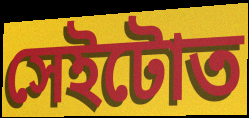
সেইটোত